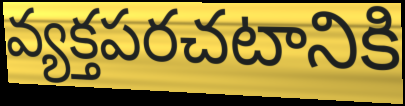
వ్యక్తపరచటానికి